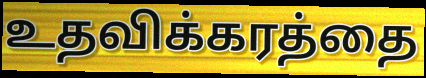
உதவிக்கரத்தை